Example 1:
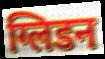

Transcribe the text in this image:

ग्लिडन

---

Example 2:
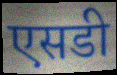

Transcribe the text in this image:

एसडी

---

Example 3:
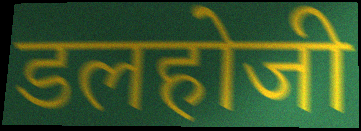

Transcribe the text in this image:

डलहोजी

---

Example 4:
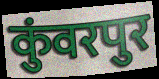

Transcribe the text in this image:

कुंवरपुर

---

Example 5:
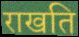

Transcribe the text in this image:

राखति